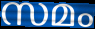
സമം